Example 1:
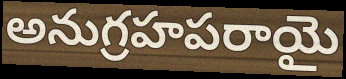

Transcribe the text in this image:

అనుగ్రహపరాయై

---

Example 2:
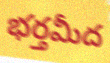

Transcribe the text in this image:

భర్తమీద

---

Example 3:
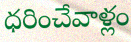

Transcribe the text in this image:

ధరించేవాళ్లం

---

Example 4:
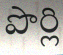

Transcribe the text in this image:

పొర్లి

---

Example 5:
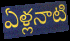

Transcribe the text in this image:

ఏళ్లనాటి